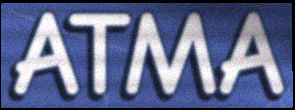
ATMA